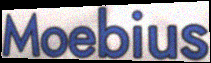
Moebius